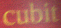
cubit